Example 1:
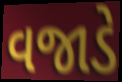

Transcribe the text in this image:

વજાડે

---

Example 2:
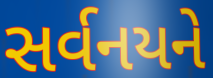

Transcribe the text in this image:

સર્વનયને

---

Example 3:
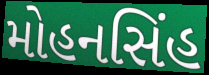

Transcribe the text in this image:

મોહનસિંહ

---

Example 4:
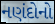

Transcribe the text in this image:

નણંદોનો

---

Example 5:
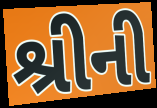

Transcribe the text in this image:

શ્રીની